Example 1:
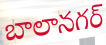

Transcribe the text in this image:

బాలానగర్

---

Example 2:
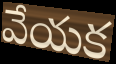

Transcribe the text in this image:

వేయక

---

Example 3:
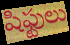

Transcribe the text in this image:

షిఫ్టులు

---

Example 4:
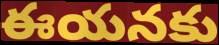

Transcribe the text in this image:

ఈయనకు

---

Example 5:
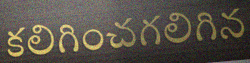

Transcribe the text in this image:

కలిగించగలిగిన